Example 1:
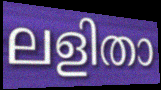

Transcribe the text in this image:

ലളിതാ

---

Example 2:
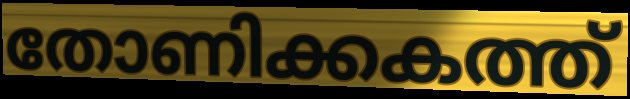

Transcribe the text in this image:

തോണിക്കകത്ത്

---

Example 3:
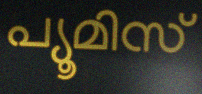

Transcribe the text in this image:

പ്യൂമിസ്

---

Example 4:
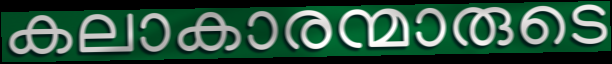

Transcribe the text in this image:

കലാകാരന്മാരുടെ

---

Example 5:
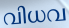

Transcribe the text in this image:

വിധവ